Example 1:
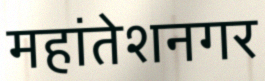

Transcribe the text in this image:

महांतेशनगर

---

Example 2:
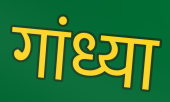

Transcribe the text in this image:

गांध्या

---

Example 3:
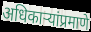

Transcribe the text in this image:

अधिकाऱ्यांप्रमाणे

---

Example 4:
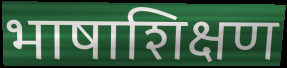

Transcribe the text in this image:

भाषाशिक्षण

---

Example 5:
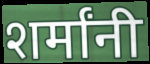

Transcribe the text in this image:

शर्मांनी